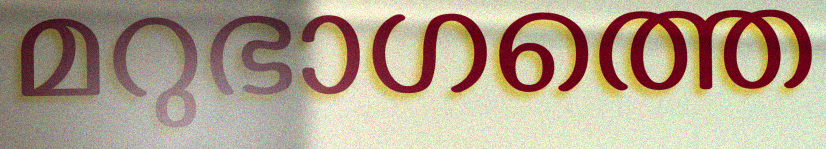
മറുഭാഗത്തെ